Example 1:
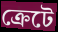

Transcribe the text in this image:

ক্রেটে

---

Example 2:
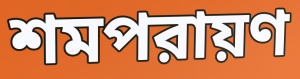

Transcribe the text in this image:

শমপরায়ণ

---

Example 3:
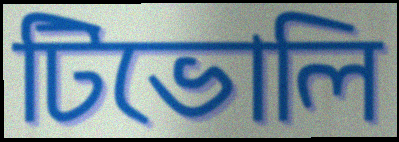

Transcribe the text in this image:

টিভোলি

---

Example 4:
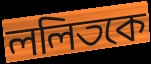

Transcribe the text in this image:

ললিতকে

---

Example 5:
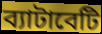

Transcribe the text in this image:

ব্যাটাবেটি